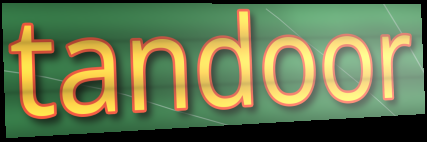
tandoor